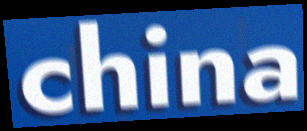
china